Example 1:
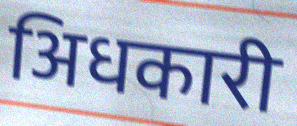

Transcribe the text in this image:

अिधकारी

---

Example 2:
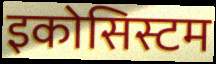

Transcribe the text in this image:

इकोसिस्टम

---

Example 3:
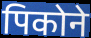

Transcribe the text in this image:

पिकोने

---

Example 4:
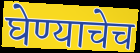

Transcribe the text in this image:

घेण्याचेच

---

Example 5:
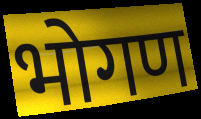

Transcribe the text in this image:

भोगण